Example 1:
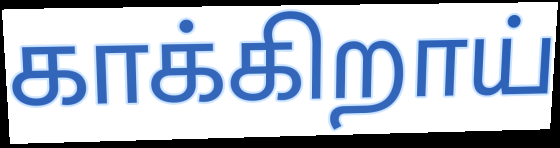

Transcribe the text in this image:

காக்கிறாய்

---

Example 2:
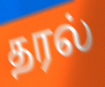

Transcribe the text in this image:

தரல்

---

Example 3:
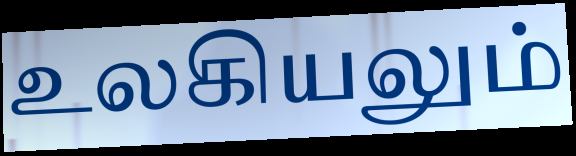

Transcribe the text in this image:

உலகியலும்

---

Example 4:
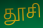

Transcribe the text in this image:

தூசி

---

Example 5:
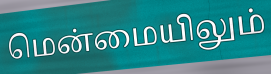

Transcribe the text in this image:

மென்மையிலும்